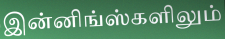
இன்னிங்ஸ்களிலும்